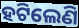
ହଟିଲେଣି